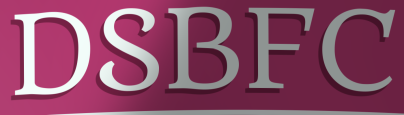
DSBFC